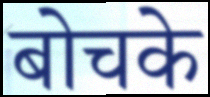
बोचके